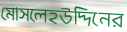
মোসলেহউদ্দিনের